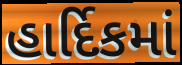
હાર્દિકમાં